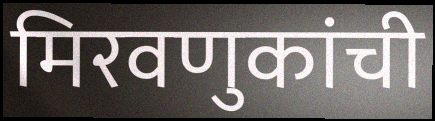
मिरवणुकांची